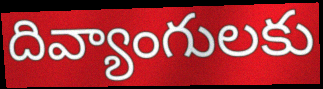
దివ్యాంగులకు